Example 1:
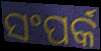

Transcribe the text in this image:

ସଂପର୍କ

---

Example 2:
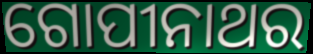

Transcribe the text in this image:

ଗୋପୀନାଥର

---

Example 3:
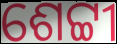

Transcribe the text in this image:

ଶେଟ୍ଟୀ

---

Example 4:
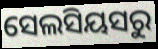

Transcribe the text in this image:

ସେଲସିୟସରୁ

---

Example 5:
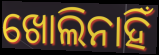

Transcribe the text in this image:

ଖୋଲିନାହିଁ